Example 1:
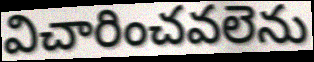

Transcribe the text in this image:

విచారించవలెను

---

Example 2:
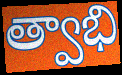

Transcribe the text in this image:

త్వాభి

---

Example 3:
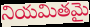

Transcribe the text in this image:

నియమితమై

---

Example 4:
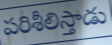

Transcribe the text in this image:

పరిశీలిస్తాడు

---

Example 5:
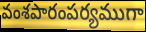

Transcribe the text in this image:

వంశపారంపర్యముగా